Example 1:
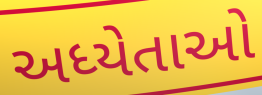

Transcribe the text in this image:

અધ્યેતાઓ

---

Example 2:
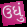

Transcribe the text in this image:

ઉધું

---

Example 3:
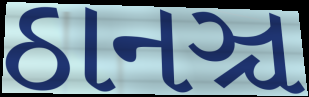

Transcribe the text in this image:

ઠાનઞ્ચ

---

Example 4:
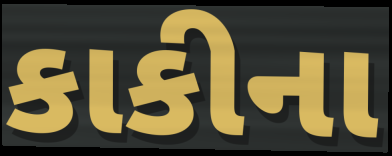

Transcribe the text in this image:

કાકીના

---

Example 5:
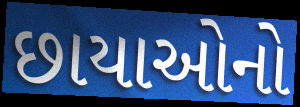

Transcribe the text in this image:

છાયાઓનો